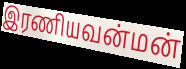
இரணியவன்மன்